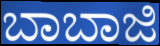
ಬಾಬಾಜಿ